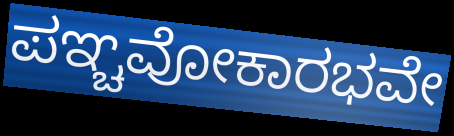
ಪಞ್ಚವೋಕಾರಭವೇ